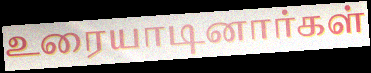
உரையாடினார்கள்